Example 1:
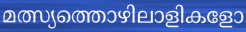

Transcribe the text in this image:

മത്സ്യത്തൊഴിലാളികളോ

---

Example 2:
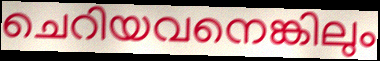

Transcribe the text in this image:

ചെറിയവനെങ്കിലും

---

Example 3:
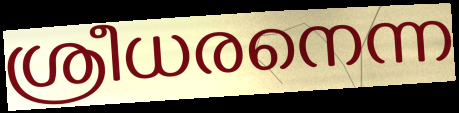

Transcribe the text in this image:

ശ്രീധരനെന്ന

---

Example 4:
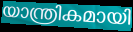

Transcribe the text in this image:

യാന്ത്രികമായി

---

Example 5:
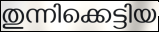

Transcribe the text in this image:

തുന്നിക്കെട്ടിയ